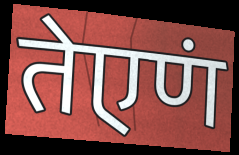
तेएणं